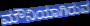
ಮೌನಿಯಾಗಿರುವ